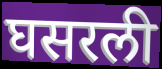
घसरली